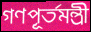
গণপূর্তমন্ত্রী